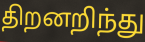
திறனறிந்து